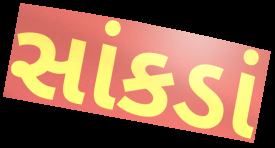
સાંકડાં